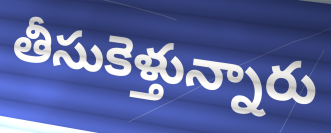
తీసుకెళ్తున్నారు